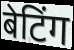
बेटिंग